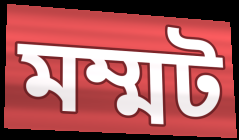
মম্মট